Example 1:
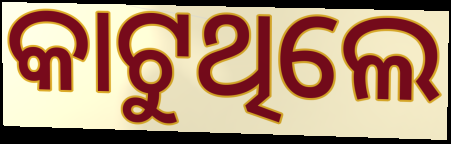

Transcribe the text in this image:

କାଟୁଥିଲେ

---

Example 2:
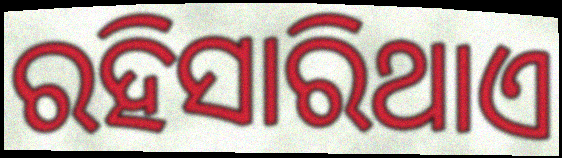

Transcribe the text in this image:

ରହିସାରିଥାଏ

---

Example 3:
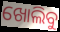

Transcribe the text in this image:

ଖୋଲିବୁ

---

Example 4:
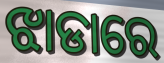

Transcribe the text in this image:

ଝାଡାରେ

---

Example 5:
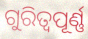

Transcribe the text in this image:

ଗୁରିତ୍ୱପୂର୍ଣ୍ଣ